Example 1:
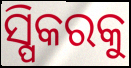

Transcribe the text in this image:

ସ୍ପିକରକୁ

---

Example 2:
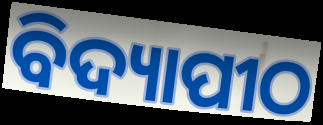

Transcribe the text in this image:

ବିଦ୍ୟାପୀଠ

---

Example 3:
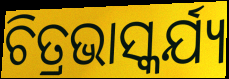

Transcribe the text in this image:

ଚିତ୍ରଭାସ୍କର୍ଯ୍ୟ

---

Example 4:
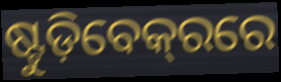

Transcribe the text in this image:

ଷ୍ଟୁଡ଼ିବେକ୍‌ରରେ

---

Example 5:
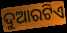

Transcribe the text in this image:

ଦୁଆରଟିଏ